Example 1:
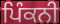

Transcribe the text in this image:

ਪਿੰਕਨੀ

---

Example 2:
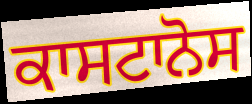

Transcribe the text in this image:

ਕਾਸਟਾਨੋਸ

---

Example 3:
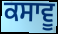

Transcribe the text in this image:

ਕਸਾਵੂ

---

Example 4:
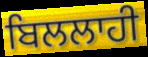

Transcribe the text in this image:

ਬਿਲਲਾਹੀ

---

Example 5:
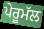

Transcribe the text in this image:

ਪੇਰੂਮੱਲ